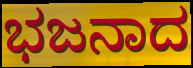
ಭಜನಾದ